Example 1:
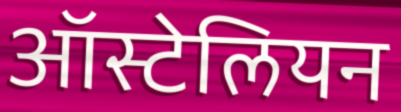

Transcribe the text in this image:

ऑस्टेलियन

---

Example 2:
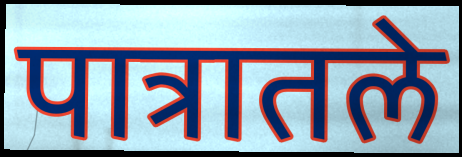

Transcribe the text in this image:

पात्रातले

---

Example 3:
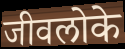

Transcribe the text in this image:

जीवलोके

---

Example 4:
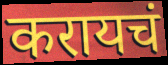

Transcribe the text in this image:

करायचं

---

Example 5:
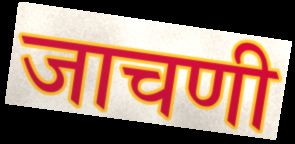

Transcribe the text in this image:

जाचणी